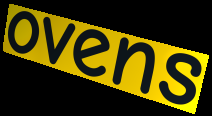
ovens